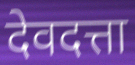
देवदत्ता